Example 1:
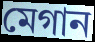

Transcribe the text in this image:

মেগান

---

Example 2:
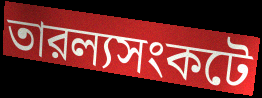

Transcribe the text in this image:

তারল্যসংকটে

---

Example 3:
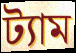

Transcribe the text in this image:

ট্যাম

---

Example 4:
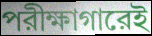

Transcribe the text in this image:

পরীক্ষাগারেই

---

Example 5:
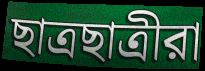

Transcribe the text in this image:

ছাত্রছাত্রীরা